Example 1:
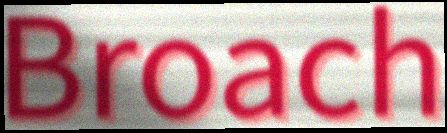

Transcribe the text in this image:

Broach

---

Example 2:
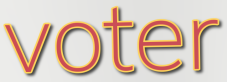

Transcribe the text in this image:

voter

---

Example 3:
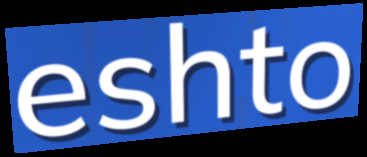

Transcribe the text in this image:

eshto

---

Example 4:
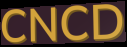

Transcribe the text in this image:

CNCD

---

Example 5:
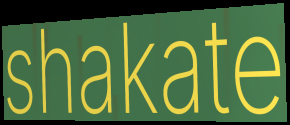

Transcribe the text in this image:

shakate